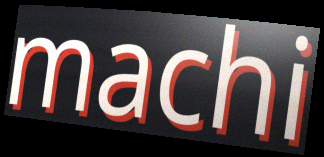
machi